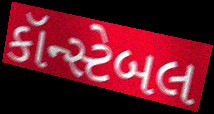
કૉન્સ્ટેબલ